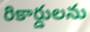
రికార్డులను